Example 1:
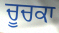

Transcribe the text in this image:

ਚੂਚਕਾ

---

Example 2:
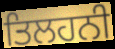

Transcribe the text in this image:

ਤਿਲਹਨੀ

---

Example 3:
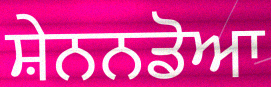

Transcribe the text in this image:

ਸ਼ੇਨਨਡੋਆ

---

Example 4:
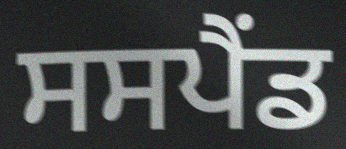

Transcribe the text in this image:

ਸਸਪੈੰਡ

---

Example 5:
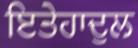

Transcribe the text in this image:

ਇਤੇਹਾਦੁਲ